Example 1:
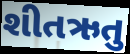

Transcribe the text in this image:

શીતઋતુ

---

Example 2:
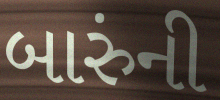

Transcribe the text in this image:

બારુંની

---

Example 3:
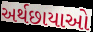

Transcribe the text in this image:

અર્થછાયાઓ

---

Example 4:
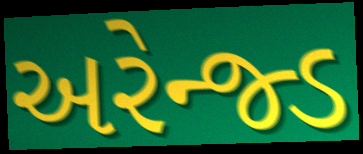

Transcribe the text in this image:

અરેન્જ્ડ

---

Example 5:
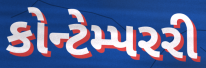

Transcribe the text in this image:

કોન્ટેમ્પરરી